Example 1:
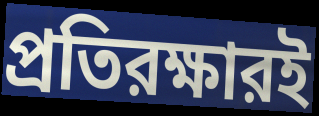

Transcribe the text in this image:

প্রতিরক্ষারই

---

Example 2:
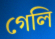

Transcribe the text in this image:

গেলি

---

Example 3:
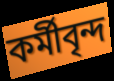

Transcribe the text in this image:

কর্মীবৃন্দ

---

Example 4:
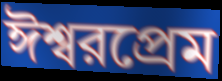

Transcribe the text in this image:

ঈশ্বরপ্রেম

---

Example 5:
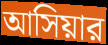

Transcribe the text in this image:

আসিয়ার